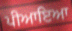
ਪੀਆਇਆ